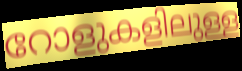
റോളുകളിലുള്ള